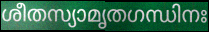
ശീതസ്യാമൃതഗന്ധിനഃ